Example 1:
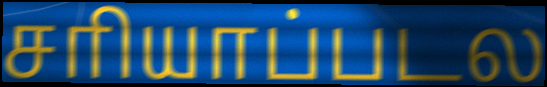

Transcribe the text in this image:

சரியாப்படல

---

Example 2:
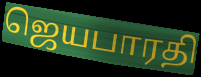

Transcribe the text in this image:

ஜெயபாரதி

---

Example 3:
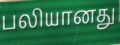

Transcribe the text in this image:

பலியானது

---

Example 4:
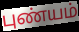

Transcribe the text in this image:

புண்யம்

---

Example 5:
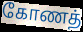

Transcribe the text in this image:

கோணத்